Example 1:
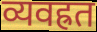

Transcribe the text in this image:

व्यवह्रत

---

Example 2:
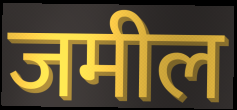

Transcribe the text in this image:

जमील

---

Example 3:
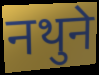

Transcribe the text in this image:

नथुने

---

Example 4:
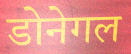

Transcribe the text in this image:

डोनेगल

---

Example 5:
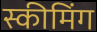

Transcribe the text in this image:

स्कीमिंग